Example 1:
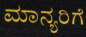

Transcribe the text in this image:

ಮಾನ್ಯರಿಗೆ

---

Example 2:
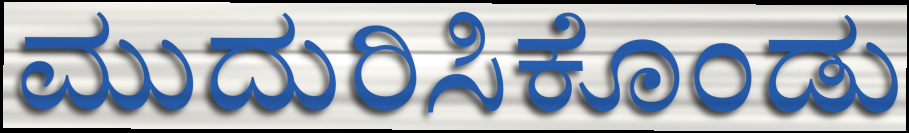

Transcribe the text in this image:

ಮುದುರಿಸಿಕೊಂಡು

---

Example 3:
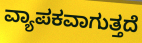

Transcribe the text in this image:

ವ್ಯಾಪಕವಾಗುತ್ತದೆ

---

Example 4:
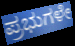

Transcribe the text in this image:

ಪ್ರಭುಗಳೇ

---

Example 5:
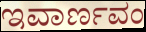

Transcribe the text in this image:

ಇವಾರ್ಣವಂ